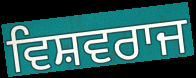
ਵਿਸ਼ਵਰਾਜ